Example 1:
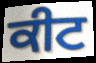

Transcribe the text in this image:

ਕੀਟ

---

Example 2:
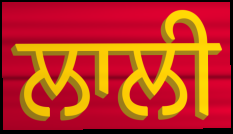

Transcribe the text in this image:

ਲਾਲੀ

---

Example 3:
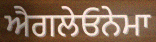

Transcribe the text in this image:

ਐਗਲੇਓਨੇਮਾ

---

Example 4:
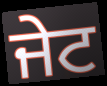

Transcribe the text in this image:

ਜੇਟ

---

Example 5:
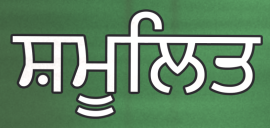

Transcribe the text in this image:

ਸ਼ਮੂਲਿਤ